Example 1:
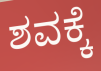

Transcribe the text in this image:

ಶವಕ್ಕೆ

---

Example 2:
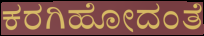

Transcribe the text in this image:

ಕರಗಿಹೋದಂತೆ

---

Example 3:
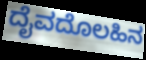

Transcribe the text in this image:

ದೈವದೊಲಹಿನ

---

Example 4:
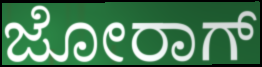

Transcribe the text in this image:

ಜೋರಾಗ್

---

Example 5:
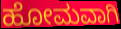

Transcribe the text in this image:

ಹೋಮವಾಗಿ